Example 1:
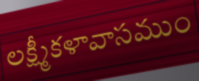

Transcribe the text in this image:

లక్ష్మీకళావాసముం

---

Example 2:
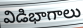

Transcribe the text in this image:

విడిభాగాలు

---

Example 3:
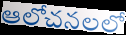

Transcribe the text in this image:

ఆలోచనలలో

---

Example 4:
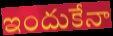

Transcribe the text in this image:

ఇందుకేనా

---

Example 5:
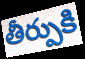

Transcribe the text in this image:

తీర్పుకి